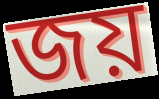
জয়